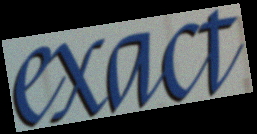
exact